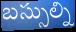
బస్సుల్ని